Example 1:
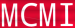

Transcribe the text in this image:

MCMI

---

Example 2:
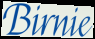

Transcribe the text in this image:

Birnie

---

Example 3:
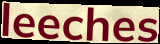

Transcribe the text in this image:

leeches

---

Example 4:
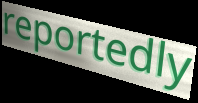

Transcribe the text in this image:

reportedly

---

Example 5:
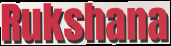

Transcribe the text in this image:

Rukshana